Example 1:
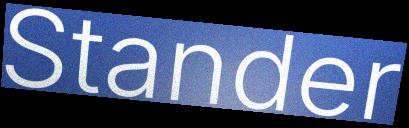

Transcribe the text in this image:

Stander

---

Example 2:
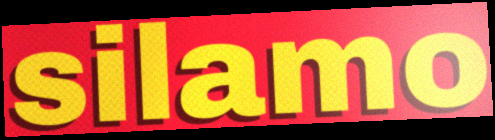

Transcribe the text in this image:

silamo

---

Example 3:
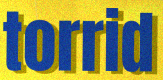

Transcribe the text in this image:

torrid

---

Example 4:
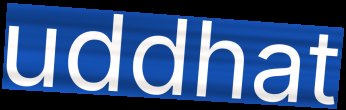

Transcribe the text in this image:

uddhat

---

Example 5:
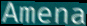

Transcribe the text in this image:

Amena